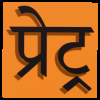
प्रेट्र